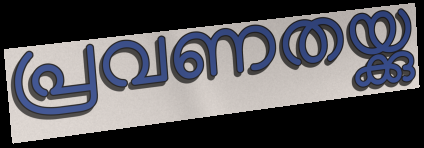
പ്രവണതയ്ക്കു